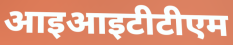
आइआइटीटीएम